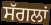
ਸੱਗਲਾਂ